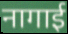
नागाई